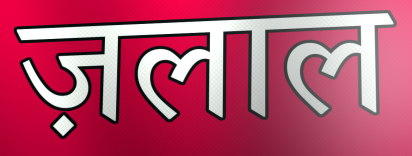
ज़लाल